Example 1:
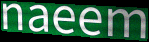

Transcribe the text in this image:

naeem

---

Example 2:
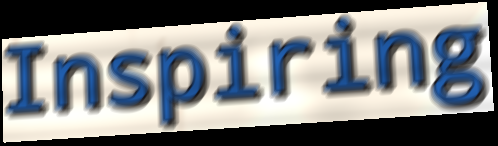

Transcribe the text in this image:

Inspiring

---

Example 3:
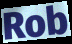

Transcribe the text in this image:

Rob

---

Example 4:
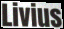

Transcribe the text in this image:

Livius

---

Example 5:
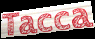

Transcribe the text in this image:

Tacca